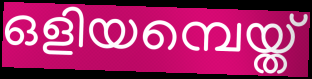
ഒളിയമ്പെയ്ത്